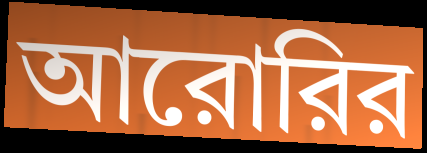
আরোরির